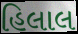
હિલાલ